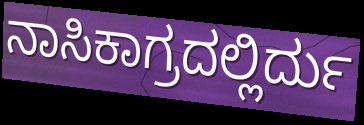
ನಾಸಿಕಾಗ್ರದಲ್ಲಿರ್ದು